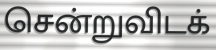
சென்றுவிடக்